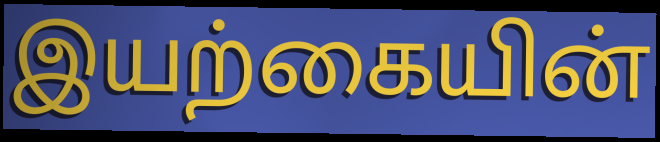
இயற்கையின்